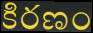
కిరణం